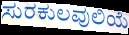
ಸುರಕುಲವುಲಿಯೆ